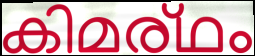
കിമര്ഥം